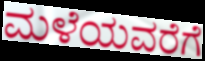
ಮಳೆಯವರೆಗೆ